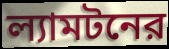
ল্যামটনের